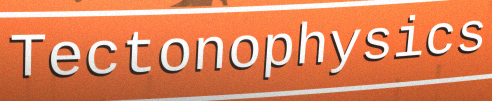
Tectonophysics